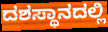
ದಶಸ್ಥಾನದಲ್ಲಿ